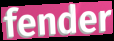
fender